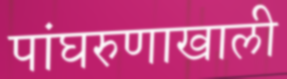
पांघरुणाखाली